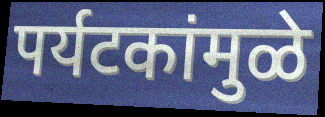
पर्यटकांमुळे